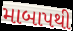
માબાપથી